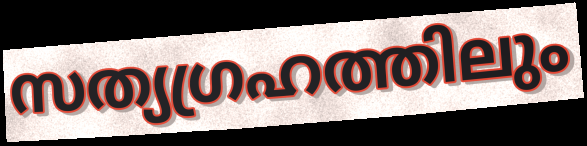
സത്യഗ്രഹത്തിലും